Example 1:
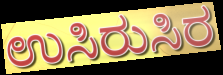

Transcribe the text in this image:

ಉಸಿರುಸಿರ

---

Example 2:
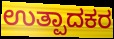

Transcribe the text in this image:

ಉತ್ಪಾದಕರ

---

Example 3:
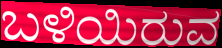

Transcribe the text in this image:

ಬಳಿಯಿರುವ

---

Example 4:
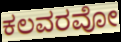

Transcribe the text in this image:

ಕಲವರವೋ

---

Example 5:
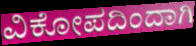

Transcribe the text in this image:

ವಿಕೋಪದಿಂದಾಗಿ